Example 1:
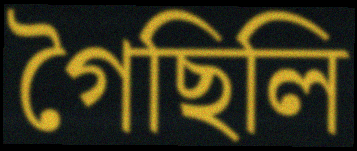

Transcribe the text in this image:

গৈছিলি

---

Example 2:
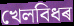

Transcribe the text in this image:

খেলবিধৰ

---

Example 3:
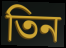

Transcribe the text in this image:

তিন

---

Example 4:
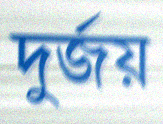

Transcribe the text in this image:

দুৰ্জয়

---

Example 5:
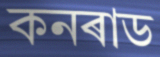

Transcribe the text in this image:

কনৰাড